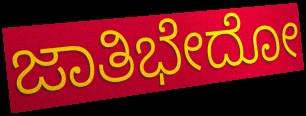
ಜಾತಿಭೇದೋ